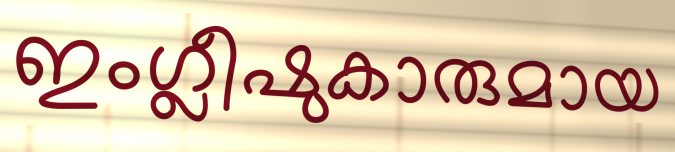
ഇംഗ്ലീഷുകാരുമായ